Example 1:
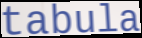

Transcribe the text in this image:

tabula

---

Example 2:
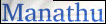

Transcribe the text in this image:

Manathu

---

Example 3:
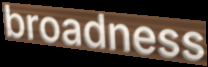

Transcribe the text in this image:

broadness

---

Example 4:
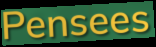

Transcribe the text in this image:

Pensees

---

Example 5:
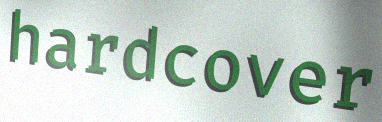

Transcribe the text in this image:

hardcover